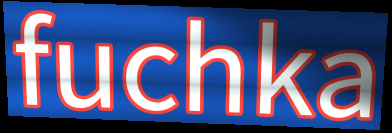
fuchka